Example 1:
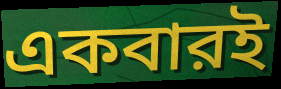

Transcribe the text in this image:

একবারই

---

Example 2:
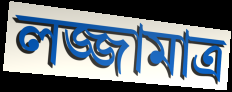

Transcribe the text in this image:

লজ্জামাত্র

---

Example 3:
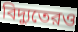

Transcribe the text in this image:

বিদ্যুতেরও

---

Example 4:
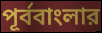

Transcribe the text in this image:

পূর্ববাংলার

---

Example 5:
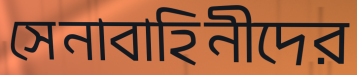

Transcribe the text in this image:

সেনাবাহিনীদের